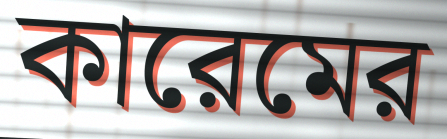
কারেমের